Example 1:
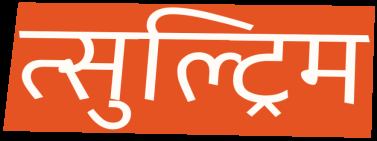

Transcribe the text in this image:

त्सुल्ट्रिम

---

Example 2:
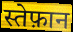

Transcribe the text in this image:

स्तेफ़ान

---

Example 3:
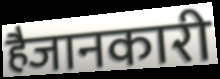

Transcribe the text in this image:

हैजानकारी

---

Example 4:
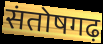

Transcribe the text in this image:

संतोषगढ़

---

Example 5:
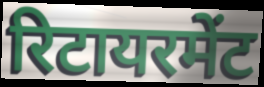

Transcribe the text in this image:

रिटायरमेंट